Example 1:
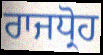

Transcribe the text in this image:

ਰਾਜਧ੍ਰੋਹ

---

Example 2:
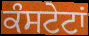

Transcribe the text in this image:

ਕੰਸਟੇਟਾਂ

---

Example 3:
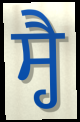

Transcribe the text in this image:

ਸ੍ਹੈ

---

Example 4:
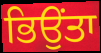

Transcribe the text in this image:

ਭਿਉਂਤਾ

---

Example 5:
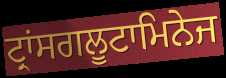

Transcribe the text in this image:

ਟ੍ਰਾਂਸਗਲੂਟਾਮਿਨੇਜ